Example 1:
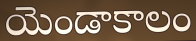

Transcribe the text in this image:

యెండాకాలం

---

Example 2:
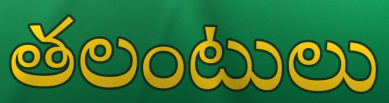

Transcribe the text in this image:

తలంటులు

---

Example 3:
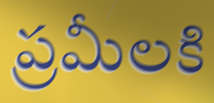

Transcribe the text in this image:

ప్రమీలకి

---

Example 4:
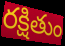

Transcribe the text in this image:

రక్షితుం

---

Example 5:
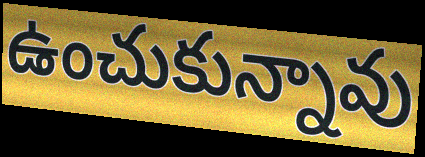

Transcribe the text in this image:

ఉంచుకున్నావు